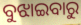
ବୁଝାଇବାରୁ